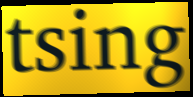
tsing